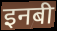
इनबी